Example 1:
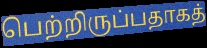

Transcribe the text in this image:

பெற்றிருப்பதாகத்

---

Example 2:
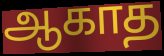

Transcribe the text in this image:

ஆகாத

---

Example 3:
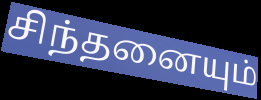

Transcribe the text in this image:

சிந்தனையும்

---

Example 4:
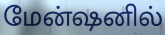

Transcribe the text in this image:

மேன்ஷனில்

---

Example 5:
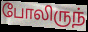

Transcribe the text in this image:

போலிருந்